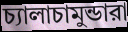
চ্যালাচামুন্ডারা